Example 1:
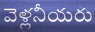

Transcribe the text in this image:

వెళ్లనీయరు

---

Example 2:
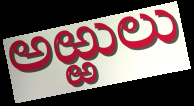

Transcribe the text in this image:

అఱ్ఱులు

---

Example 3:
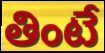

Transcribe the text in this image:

తింటే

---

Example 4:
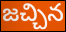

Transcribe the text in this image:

జచ్చిన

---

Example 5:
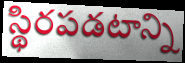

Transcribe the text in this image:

స్థిరపడటాన్ని